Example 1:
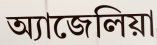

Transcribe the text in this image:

অ্যাজেলিয়া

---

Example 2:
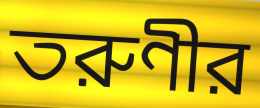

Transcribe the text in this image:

তরুণীর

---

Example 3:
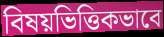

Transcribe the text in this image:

বিষয়ভিত্তিকভাবে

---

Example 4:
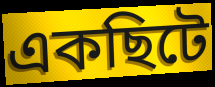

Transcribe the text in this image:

একছিটে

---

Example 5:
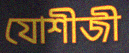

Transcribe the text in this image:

যোশীজী